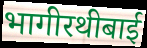
भागीरथीबाई